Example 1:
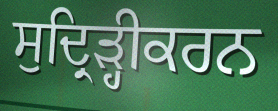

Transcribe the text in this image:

ਸੁਦ੍ਰਿੜ੍ਹੀਕਰਨ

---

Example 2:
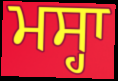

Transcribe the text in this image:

ਮਸ੍ਹਾ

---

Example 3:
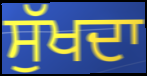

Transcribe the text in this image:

ਸੁੱਖਦਾ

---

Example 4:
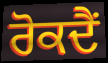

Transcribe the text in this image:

ਰੋਕਦੈਂ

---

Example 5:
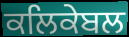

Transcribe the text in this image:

ਕਲਿਕੇਬਲ